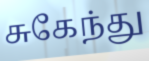
சுகேந்து